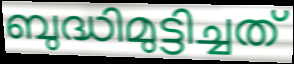
ബുദ്ധിമുട്ടിച്ചത്